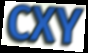
CXY